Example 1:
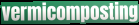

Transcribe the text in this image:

vermicomposting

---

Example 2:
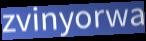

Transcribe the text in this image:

zvinyorwa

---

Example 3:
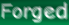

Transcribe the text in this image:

Forged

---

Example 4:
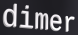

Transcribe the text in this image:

dimer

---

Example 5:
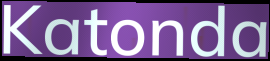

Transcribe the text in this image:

Katonda